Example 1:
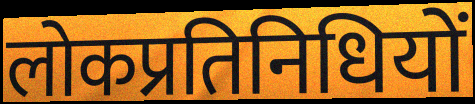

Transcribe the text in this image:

लोकप्रतिनिधियों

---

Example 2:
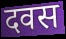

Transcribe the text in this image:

दवस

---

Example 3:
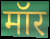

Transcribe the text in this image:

मॉर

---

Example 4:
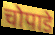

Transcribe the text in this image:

चोपाडे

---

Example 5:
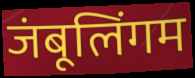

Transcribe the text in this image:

जंबूलिंगम